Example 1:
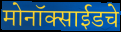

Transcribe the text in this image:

मोनॉक्साईडचे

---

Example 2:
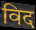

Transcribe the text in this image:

विद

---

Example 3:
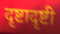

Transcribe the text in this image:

दृष्टादृष्टी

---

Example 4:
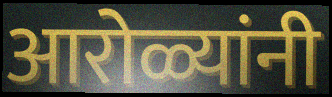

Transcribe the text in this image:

आरोळ्यांनी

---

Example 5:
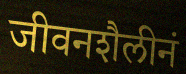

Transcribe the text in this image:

जीवनशैलीनं